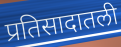
प्रतिसादातली